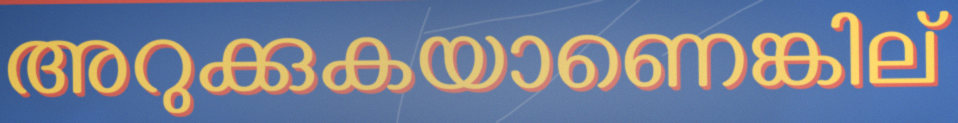
അറുക്കുകയാണെങ്കില്